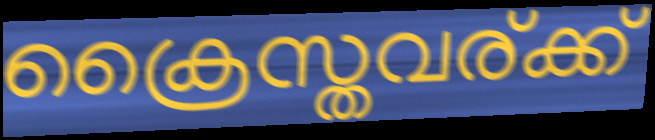
ക്രൈസ്തവര്ക്ക്